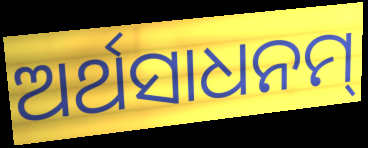
ଅର୍ଥସାଧନମ୍